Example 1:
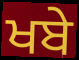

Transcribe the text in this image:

ਖਬੇ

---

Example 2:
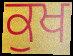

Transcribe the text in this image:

ਕੁਖ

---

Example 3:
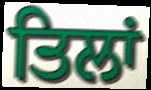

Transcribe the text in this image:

ਤਿਲਾਂ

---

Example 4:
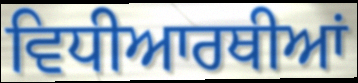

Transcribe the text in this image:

ਵਿਧੀਆਰਥੀਆਂ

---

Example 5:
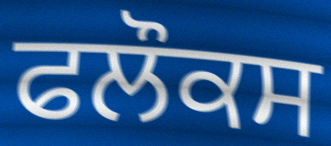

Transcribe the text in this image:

ਫਲੌਕਸ